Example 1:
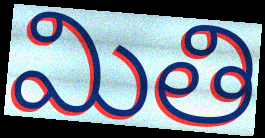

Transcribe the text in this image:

మితి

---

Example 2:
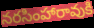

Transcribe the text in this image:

నరసింహారావుకి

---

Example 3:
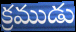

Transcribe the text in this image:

క్రముడు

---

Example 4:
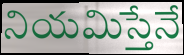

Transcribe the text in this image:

నియమిస్తేనే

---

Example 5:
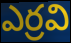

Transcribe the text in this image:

ఎర్రవి